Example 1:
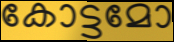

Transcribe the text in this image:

കോട്ടമോ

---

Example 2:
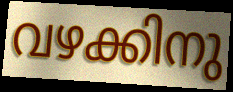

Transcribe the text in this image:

വഴക്കിനു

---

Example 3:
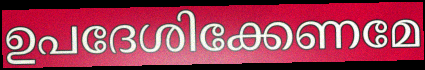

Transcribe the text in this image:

ഉപദേശിക്കേണമേ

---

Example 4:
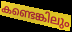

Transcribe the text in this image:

കണ്ടെങ്കിലും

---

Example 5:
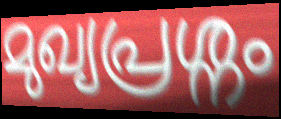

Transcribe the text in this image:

മുഖ്യപ്രശ്നം